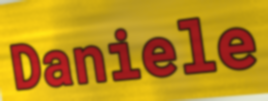
Daniele